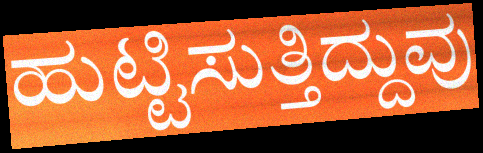
ಹುಟ್ಟಿಸುತ್ತಿದ್ದುವು